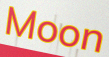
Moon